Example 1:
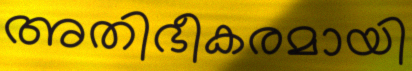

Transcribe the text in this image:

അതിഭീകരമായി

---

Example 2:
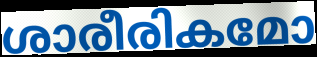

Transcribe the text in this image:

ശാരീരികമോ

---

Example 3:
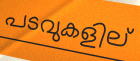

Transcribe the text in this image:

പടവുകളില്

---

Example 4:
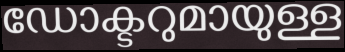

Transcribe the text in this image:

ഡോക്ടറുമായുള്ള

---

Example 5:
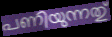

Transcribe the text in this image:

പണിയുന്നതു്